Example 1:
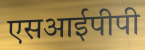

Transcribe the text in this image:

एसआईपीपी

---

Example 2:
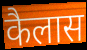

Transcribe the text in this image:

कैलास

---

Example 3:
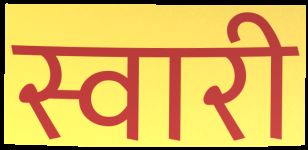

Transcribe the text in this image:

स्वारी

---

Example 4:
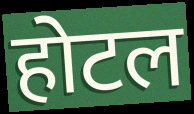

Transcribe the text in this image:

होटल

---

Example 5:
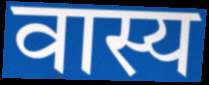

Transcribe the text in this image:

वास्य